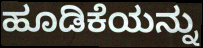
ಹೂಡಿಕೆಯನ್ನು